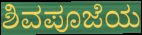
ಶಿವಪೂಜೆಯ